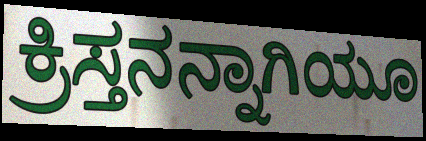
ಕ್ರಿಸ್ತನನ್ನಾಗಿಯೂ